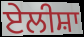
ਏਲੀਸ਼ਾ